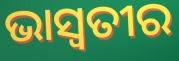
ଭାସ୍ଵତୀର